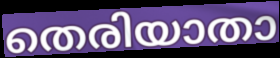
തെരിയാതാ